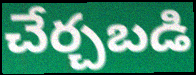
చేర్చబడి